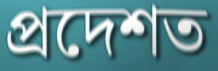
প্ৰদেশত